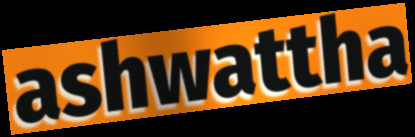
ashwattha